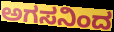
ಅಗಸನಿಂದ